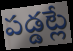
పడ్డట్లే